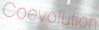
Coevolution